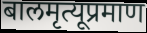
बालमृत्यूप्रमाण